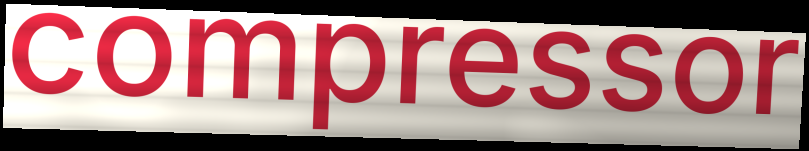
compressor